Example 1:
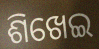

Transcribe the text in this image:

ଶିଖେଇ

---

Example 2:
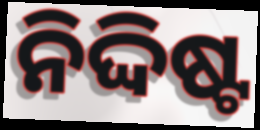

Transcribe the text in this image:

ନିଦ୍ଦିଷ୍ଟ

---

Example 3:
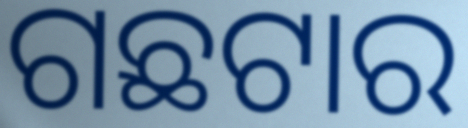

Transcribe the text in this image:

ଗଛଟାର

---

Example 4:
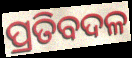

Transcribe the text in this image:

ପ୍ରତିବଦଳ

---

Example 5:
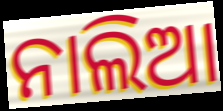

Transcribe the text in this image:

ନାଲିଆ